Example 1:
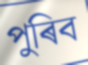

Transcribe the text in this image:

পুৰিব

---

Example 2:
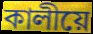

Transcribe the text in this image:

কালীয়ে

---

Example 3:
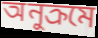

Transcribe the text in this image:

অনুক্ৰমে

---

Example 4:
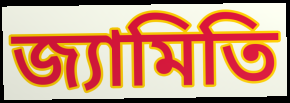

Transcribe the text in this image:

জ্যামিতি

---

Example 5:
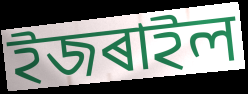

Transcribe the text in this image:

ইজৰাইল